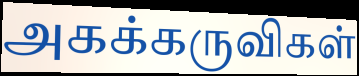
அகக்கருவிகள்